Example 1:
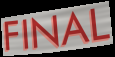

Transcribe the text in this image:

FINAL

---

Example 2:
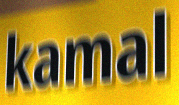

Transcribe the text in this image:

kamal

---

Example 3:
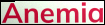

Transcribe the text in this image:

Anemia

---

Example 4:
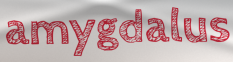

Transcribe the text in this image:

amygdalus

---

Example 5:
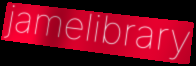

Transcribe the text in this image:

jamelibrary